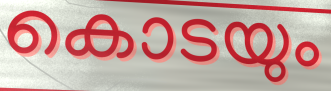
കൊടയും